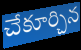
చేకూర్చిన